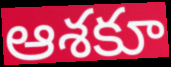
ఆశకూ